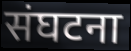
संघटना